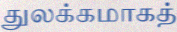
துலக்கமாகத்